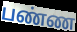
பண்ண